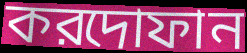
করদোফান